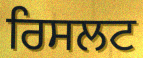
ਰਿਸਲਟ